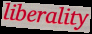
liberality